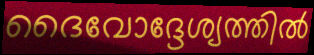
ദൈവോദ്ദേശ്യത്തിൽ